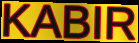
KABIR